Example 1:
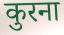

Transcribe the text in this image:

कुरना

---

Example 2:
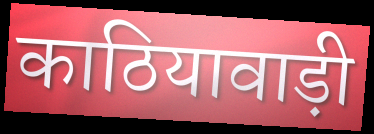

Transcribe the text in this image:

काठियावाड़ी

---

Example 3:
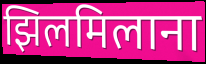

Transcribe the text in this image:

झिलमिलाना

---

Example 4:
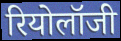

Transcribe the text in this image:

रियोलॉजी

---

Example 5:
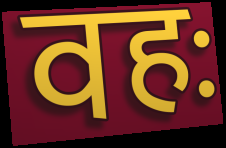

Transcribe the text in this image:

वहः